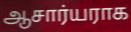
ஆசார்யராக